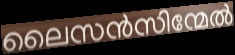
ലൈസൻസിന്മേൽ